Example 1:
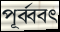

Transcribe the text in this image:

পূর্ব্ববৎ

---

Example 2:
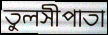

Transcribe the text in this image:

তুলসীপাতা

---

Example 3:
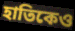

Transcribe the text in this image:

হাতিকেও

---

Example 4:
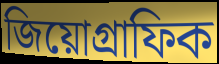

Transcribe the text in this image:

জিয়োগ্রাফিক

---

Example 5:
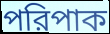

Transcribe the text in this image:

পরিপাক